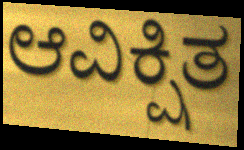
ಆವಿಕ್ಷಿತ